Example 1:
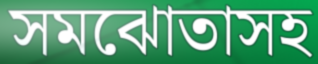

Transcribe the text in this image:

সমঝোতাসহ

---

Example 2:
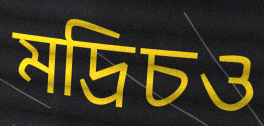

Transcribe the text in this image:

মদ্রিচও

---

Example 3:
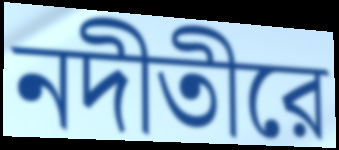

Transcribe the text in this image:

নদীতীরে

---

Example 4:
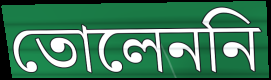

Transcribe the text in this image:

তোলেননি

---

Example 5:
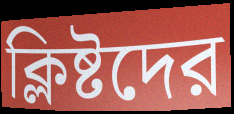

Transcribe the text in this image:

ক্লিষ্টদের